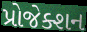
પ્રોજેક્શન